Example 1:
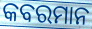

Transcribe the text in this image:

କବରମାନ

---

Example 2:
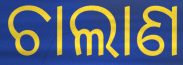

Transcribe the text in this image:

ଚାଲାଣ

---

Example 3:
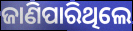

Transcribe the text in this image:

ଜାଣିପାରିଥିଲେ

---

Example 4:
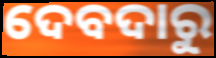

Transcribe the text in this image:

ଦେବଦାରୁ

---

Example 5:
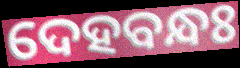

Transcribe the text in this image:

ଦେହବନ୍ଧଃ